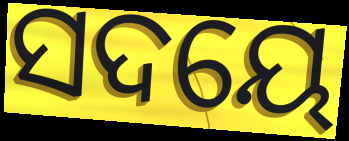
ସଦୟେ